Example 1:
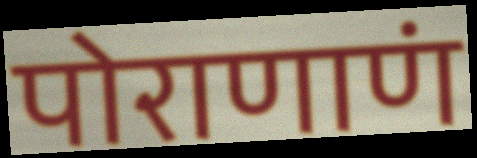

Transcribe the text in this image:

पोराणाणं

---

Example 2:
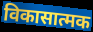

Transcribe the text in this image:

विकासात्मक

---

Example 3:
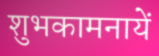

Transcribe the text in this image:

शुभकामनायें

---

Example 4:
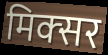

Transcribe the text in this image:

मिक्‍सर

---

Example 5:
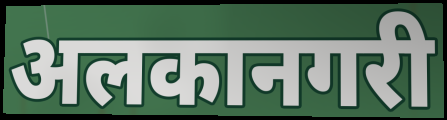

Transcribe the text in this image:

अलकानगरी